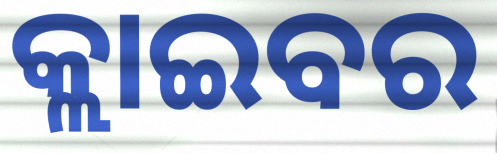
କ୍ଲାଇବର